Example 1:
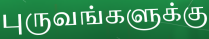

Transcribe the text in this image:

புருவங்களுக்கு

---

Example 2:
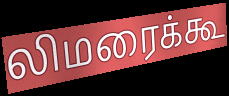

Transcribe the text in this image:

லிமரைக்கூ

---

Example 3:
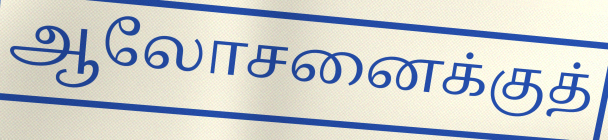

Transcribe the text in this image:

ஆலோசனைக்குத்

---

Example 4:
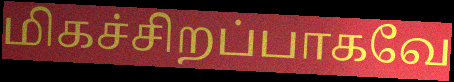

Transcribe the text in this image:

மிகச்சிறப்பாகவே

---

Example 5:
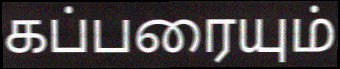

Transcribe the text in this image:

கப்பரையும்